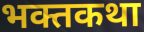
भक्तकथा